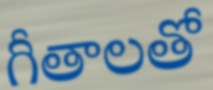
గీతాలతో